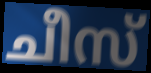
ചീസ്